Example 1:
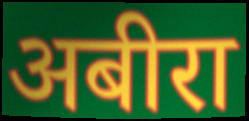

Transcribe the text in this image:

अबीरा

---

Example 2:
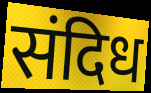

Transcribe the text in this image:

संदिध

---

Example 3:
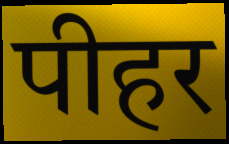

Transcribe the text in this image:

पीहर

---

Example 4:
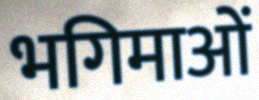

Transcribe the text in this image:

भगिमाओं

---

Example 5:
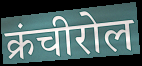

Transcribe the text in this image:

क्रंचीरोल